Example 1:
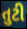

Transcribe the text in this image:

તુટી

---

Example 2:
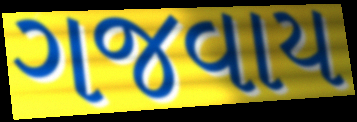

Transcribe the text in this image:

ગજવાય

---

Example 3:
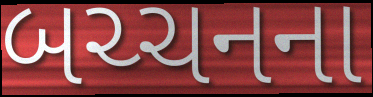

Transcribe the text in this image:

બચ્ચનના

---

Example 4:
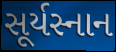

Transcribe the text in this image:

સૂર્યસ્નાન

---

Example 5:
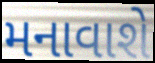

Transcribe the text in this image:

મનાવાશે